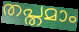
തപ്തമാം